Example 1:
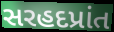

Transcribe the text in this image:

સરહદપ્રાંત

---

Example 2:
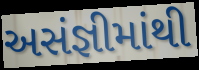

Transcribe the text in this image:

અસંજ્ઞીમાંથી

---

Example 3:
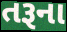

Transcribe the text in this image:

તરૂના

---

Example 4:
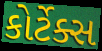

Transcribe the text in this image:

કોર્ટેક્સ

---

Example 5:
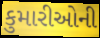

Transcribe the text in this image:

કુમારીઓની